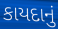
કાયદાનું